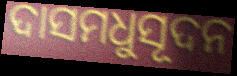
ଦାସମଧୁସୂଦନ